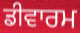
ਡੀਵਾਰਮ